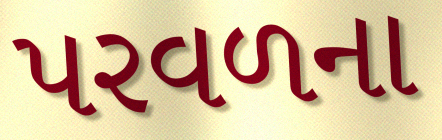
પરવળના